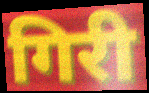
गिरी